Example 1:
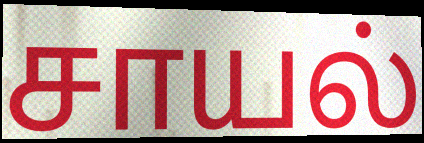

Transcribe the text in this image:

சாயல்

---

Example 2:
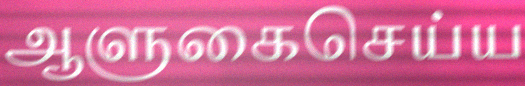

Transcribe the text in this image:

ஆளுகைசெய்ய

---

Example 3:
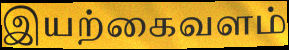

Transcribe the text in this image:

இயற்கைவளம்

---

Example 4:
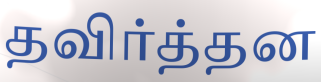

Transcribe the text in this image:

தவிர்த்தன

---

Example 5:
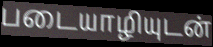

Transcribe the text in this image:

படையாழியுடன்